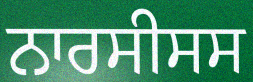
ਨਾਰਸੀਸਸ